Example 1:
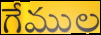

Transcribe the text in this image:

గేముల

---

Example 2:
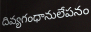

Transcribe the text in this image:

దివ్యగంధానులేపనం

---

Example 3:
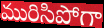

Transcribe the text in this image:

మురిసిపోగా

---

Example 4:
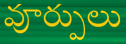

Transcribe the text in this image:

వూర్పులు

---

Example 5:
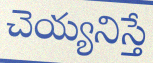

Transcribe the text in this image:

చెయ్యనిస్తే